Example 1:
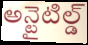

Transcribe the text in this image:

అన్టైటిల్డ్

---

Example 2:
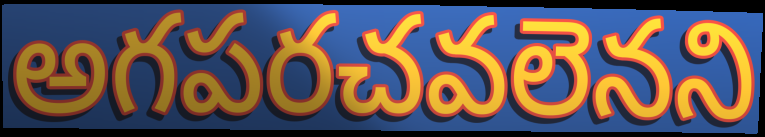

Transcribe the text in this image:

అగపరచవలెనని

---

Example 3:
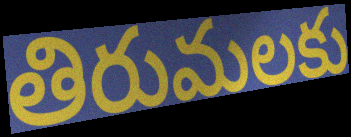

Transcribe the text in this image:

తిరుమలకు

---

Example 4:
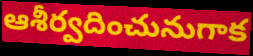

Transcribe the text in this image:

ఆశీర్వదించునుగాక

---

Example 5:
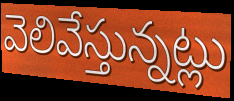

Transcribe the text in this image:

వెలివేస్తున్నట్లు